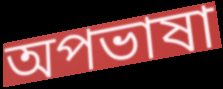
অপভাষা